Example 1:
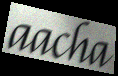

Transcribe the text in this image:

aacha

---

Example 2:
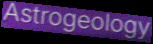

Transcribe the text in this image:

Astrogeology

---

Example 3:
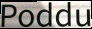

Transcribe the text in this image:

Poddu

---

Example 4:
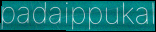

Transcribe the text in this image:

padaippukal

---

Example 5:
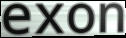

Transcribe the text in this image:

exon